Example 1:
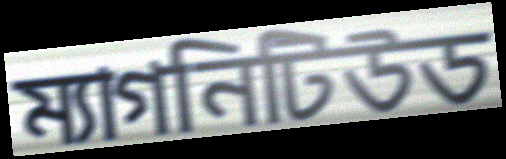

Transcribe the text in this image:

ম্যাগনিটিউড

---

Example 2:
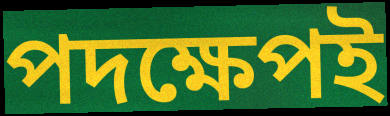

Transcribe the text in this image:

পদক্ষেপই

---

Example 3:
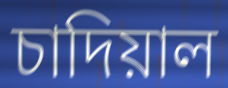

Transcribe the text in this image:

চাদিয়াল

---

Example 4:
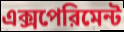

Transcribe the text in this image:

এক্সপেরিমেন্ট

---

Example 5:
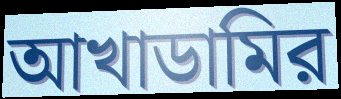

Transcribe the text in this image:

আখাডামির